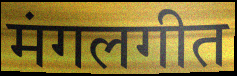
मंगलगीत